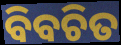
ବିବଚିତ